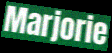
Marjorie